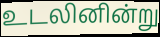
உடலினின்று